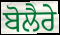
ਬੋਲੈਰੇ